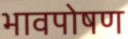
भावपोषण